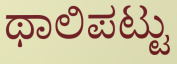
ಥಾಲಿಪಟ್ಟು